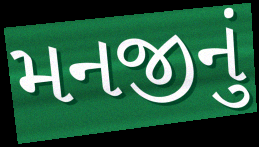
મનજીનું